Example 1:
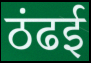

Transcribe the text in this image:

ठंढई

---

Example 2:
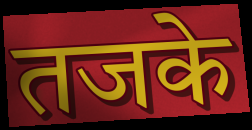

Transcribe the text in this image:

तजके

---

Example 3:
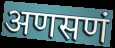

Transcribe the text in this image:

अणसणं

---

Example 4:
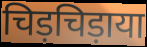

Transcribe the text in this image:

चिड़चिड़ाया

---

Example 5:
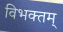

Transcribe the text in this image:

विभक्तम्